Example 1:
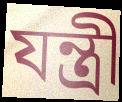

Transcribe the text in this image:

যন্ত্রী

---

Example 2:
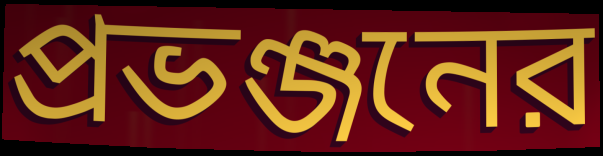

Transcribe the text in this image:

প্রভঞ্জনের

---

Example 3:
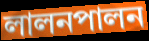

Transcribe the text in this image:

লালনপালন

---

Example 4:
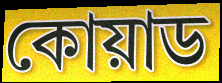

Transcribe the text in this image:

কোয়াড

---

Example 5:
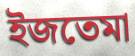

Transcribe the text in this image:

ইজতেমা